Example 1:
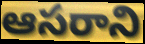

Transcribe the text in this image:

ఆసరాని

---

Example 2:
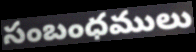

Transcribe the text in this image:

సంబంధములు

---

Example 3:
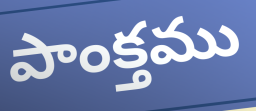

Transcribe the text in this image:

పాంక్తము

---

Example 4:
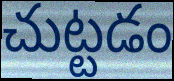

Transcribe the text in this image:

చుట్టడం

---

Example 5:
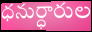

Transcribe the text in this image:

ధనుర్ధారుల